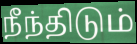
நீந்திடும்